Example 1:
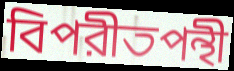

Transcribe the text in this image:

বিপরীতপন্থী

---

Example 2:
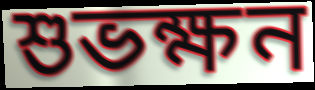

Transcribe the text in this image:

শুভক্ষন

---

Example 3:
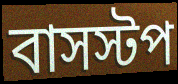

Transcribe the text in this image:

বাসস্টপ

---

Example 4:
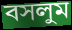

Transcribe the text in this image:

বসলুম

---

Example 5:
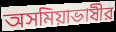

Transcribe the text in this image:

অসমিয়াভাষীর